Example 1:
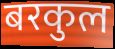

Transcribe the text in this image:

बरकुल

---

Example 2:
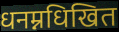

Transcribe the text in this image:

धनम्नधिखित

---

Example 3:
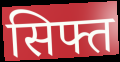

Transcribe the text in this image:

सिफ्त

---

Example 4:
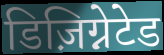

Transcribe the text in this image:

डिज़िग्नेटेड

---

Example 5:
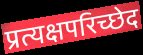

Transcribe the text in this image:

प्रत्यक्षपरिच्छेद